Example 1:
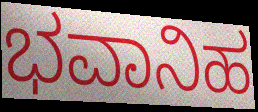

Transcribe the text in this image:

ಭವಾನಿಹ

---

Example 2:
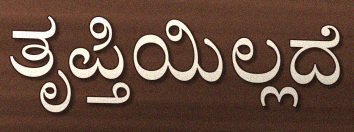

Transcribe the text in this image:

ತೃಪ್ತಿಯಿಲ್ಲದೆ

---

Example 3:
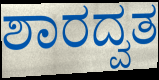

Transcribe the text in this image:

ಶಾರದ್ವತ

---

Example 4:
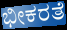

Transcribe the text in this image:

ಭೀಕರತೆ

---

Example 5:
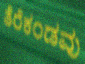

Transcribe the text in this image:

ತೆರೆಕಂಡವು